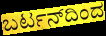
ಬರ್ಟನ್‌ದಿಂದ